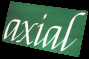
axial